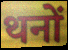
थनों